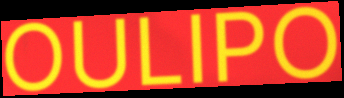
OULIPO